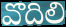
వొదిలి